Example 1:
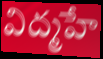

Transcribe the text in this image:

విద్మహే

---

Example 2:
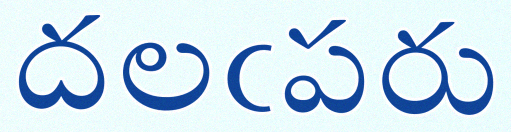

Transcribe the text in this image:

దలఁపరు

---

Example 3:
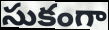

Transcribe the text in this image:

సుకంగా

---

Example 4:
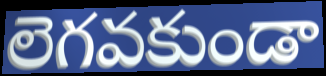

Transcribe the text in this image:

లెగవకుండా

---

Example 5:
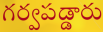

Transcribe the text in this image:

గర్వపడ్డారు